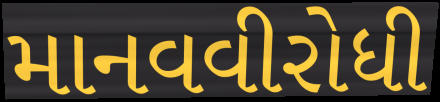
માનવવીરોધી